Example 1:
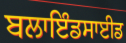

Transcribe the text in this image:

ਬਲਾਇੰਡਸਾਈਡ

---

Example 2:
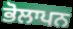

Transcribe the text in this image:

ਭੋਲਾਪਨ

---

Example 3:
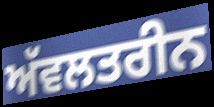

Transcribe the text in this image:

ਅੱਵਲਤਰੀਨ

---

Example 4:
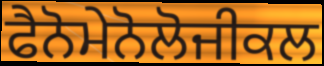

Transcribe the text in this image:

ਫੈਨੋਮੇਨੋਲੋਜੀਕਲ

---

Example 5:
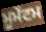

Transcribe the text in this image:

ਮੂਮੇਂਟਮ